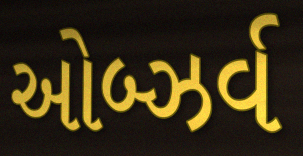
ઓબ્ઝર્વ